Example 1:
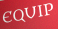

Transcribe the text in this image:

EQUIP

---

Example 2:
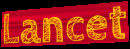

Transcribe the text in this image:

Lancet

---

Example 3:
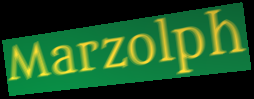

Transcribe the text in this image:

Marzolph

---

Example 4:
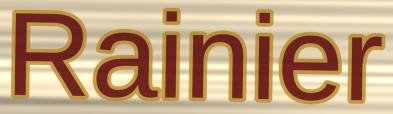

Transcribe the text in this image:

Rainier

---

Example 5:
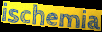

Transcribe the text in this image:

ischemia